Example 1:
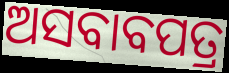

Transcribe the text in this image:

ଅସବାବପତ୍ର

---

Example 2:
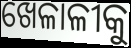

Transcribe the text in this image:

ଖେଳାଳୀକୁ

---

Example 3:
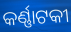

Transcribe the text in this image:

କର୍ଣ୍ଣାଟକୀ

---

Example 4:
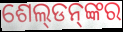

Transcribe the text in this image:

ଶେଲ୍‌ଡନ୍‌ଙ୍କର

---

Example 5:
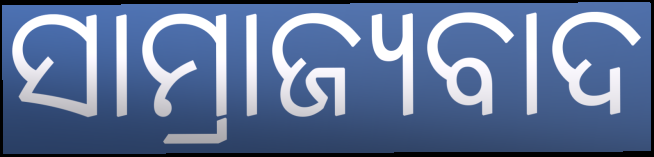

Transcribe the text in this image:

ସାମ୍ରାଜ୍ୟବାଦ